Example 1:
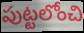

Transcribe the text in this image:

పుట్టలోంచి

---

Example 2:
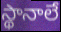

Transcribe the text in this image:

స్థానాలే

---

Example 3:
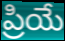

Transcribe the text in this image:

ప్రియే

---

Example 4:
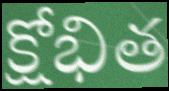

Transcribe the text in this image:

క్షోభిత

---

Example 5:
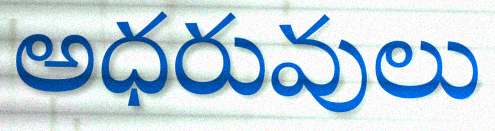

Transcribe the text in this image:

అధరువులు